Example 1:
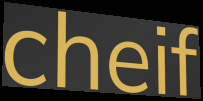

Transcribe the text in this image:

cheif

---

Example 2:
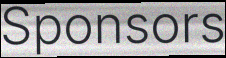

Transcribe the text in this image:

Sponsors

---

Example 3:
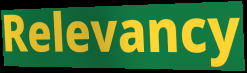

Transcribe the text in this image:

Relevancy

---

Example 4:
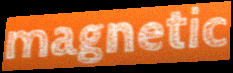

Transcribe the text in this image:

magnetic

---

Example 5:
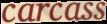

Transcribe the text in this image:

carcass